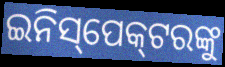
ଇନିସ୍‌ପେକ୍‌ଟରଙ୍କୁ